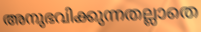
അനുഭവിക്കുന്നതല്ലാതെ